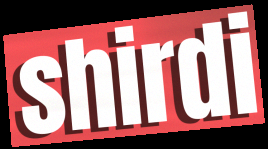
shirdi